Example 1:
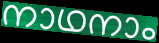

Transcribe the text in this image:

നാഥനാം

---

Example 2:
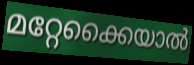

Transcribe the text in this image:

മറ്റേക്കൈയാൽ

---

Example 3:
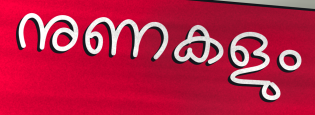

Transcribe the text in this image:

നുണകളും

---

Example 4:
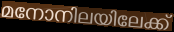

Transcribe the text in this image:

മനോനിലയിലേക്ക്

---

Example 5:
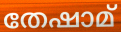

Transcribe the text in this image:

തേഷാമ്